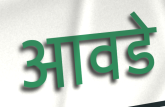
आवडे